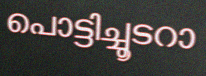
പൊട്ടിച്ചൂടറാ